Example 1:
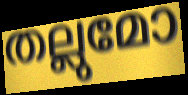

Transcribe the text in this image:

തല്ലുമോ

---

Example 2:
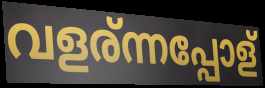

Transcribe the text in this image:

വളര്ന്നപ്പോള്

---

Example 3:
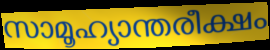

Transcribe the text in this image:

സാമൂഹ്യാന്തരീക്ഷം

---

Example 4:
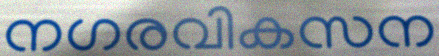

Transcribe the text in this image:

നഗരവികസന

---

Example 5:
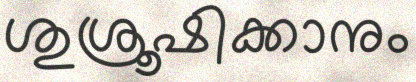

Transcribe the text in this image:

ശുശ്രൂഷിക്കാനും